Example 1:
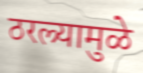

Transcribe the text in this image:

ठरल्यामुळे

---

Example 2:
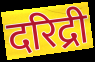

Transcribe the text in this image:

दरिद्री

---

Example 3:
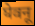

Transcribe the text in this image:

घेवनू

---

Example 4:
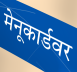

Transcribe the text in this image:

मेनूकार्डवर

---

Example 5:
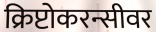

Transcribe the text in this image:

क्रिप्टोकरन्सीवर